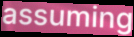
assuming